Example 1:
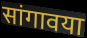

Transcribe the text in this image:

सांगावया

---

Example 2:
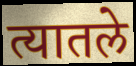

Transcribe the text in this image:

त्‍यातले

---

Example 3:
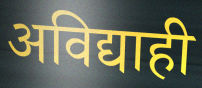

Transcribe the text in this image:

अविद्याही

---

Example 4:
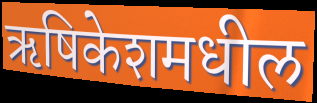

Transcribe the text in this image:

ऋषिकेशमधील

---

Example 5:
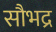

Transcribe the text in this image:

सौभद्र